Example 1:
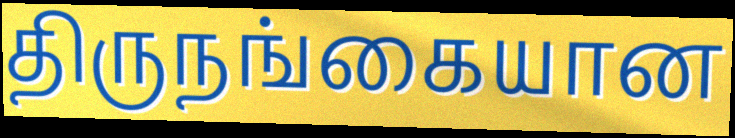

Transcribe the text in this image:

திருநங்கையான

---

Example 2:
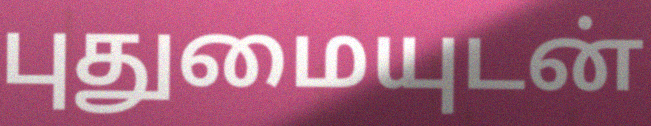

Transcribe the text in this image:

புதுமையுடன்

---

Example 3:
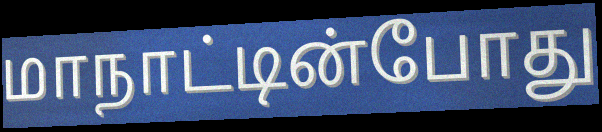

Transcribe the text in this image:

மாநாட்டின்போது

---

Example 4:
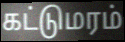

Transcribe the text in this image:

கட்டுமரம்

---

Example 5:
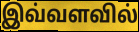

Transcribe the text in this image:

இவ்வளவில்